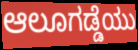
ಆಲೂಗಡ್ಡೆಯು